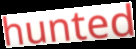
hunted